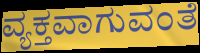
ವ್ಯಕ್ತವಾಗುವಂತೆ